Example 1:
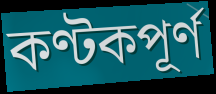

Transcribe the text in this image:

কণ্টকপূর্ণ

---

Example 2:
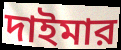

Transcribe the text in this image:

দাইমার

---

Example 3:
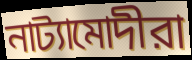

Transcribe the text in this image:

নাট্যামোদীরা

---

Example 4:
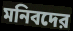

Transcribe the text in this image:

মনিবদের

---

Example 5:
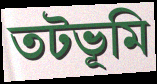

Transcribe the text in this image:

তটভূমি